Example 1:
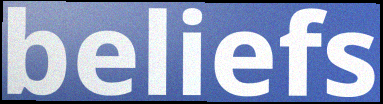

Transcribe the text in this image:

beliefs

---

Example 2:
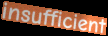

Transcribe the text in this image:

insufficient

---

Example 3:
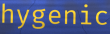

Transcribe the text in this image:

hygenic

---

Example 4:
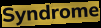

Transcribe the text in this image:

Syndrome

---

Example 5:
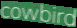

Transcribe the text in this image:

cowbird